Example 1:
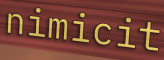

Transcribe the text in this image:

nimicit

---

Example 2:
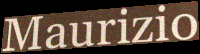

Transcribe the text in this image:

Maurizio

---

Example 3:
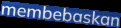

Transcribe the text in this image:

membebaskan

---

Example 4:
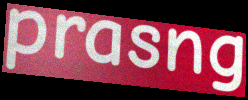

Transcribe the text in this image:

prasng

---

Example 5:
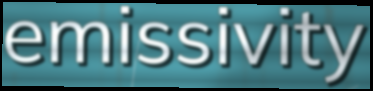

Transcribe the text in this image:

emissivity